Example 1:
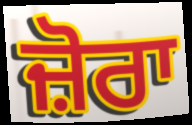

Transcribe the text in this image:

ਜ਼ੋਰਾ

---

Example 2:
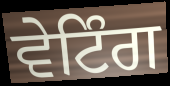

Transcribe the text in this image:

ਵੇਟਿੰਗ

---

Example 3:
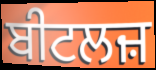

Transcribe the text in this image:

ਬੀਟਲਜ਼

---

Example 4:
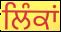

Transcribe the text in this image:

ਲਿੰਕਾਂ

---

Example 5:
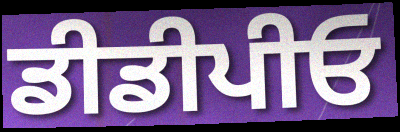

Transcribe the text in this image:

ਡੀਡੀਪੀਓ